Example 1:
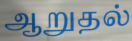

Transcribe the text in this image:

ஆறுதல்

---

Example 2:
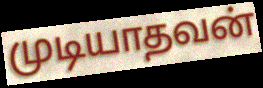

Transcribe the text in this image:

முடியாதவன்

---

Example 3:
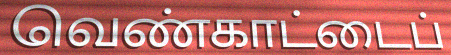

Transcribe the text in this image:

வெண்காட்டைப்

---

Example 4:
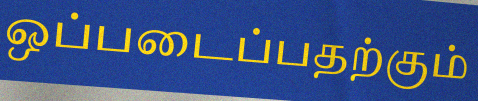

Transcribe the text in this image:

ஒப்படைப்பதற்கும்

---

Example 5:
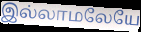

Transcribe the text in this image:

இல்லாமலேயே